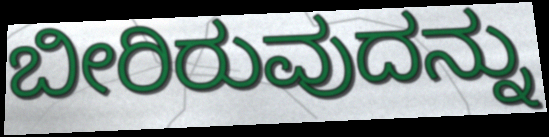
ಬೀರಿರುವುದನ್ನು